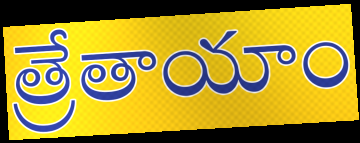
త్రేతాయాం